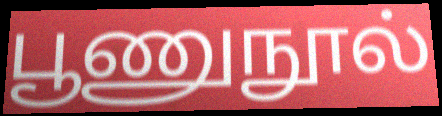
பூணுநூல்